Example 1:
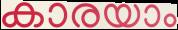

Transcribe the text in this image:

കാരയാം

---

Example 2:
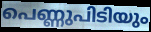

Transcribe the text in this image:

പെണ്ണുപിടിയും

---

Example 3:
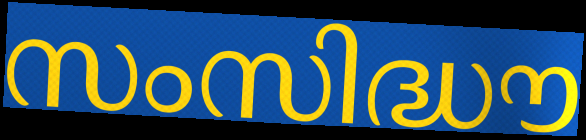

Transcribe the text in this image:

സംസിദ്ധൗ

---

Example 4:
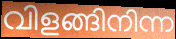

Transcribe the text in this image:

വിളങ്ങിനിന്ന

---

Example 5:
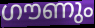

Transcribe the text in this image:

ഗൗണും